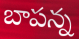
బాపన్న